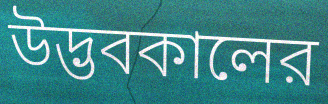
উদ্ভবকালের